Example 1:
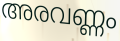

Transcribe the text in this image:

അരവണ്ണം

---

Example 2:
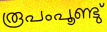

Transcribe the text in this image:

രൂപംപൂണ്ടു്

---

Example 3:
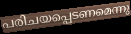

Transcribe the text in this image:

പരിചയപ്പെടണമെന്നു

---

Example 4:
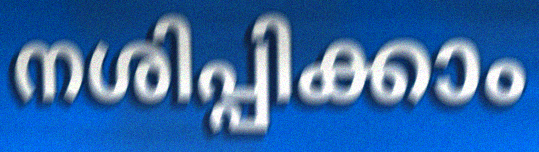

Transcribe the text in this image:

നശിപ്പിക്കാം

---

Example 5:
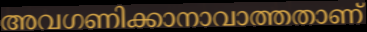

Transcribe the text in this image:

അവഗണിക്കാനാവാത്തതാണ്